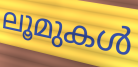
ലൂമുകൾ